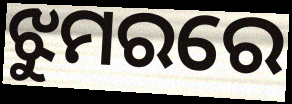
ଝୁମରରେ